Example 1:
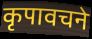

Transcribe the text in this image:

कृपावचने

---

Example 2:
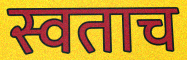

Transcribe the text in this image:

स्वताच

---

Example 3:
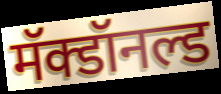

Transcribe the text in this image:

मॅक्डॉनल्ड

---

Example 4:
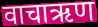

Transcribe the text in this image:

वाचाऋण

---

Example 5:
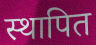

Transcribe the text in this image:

स्थापित